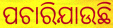
ପଚାରିଯାଉଛି